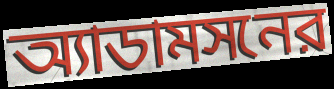
অ্যাডামসনের